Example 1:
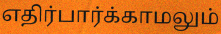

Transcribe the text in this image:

எதிர்பார்க்காமலும்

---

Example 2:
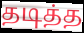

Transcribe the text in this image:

தடித்த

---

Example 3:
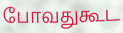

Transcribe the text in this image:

போவதுகூட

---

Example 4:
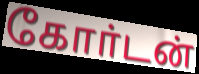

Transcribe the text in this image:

கோர்டன்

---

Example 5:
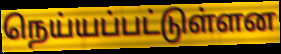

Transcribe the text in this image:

நெய்யப்பட்டுள்ளன